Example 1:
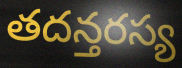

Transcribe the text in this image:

తదన్తరస్య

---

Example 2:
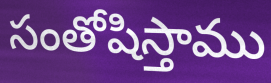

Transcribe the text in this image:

సంతోషిస్తాము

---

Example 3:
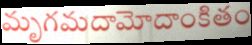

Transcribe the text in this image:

మృగమదామోదాంకితం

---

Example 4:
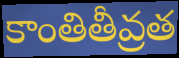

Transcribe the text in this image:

కాంతితీవ్రత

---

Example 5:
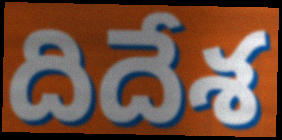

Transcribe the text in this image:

దిదేశ